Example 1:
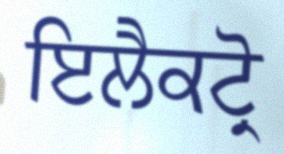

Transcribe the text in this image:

ਇਲੈਕਟ੍ਰੋ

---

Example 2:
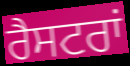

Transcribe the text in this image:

ਰੈਸਟਰਾਂ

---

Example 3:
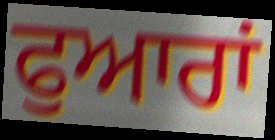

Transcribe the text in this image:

ਫੁਆਰਾਂ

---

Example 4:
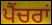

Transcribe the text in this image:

ਪੈਂਚਰਾਂ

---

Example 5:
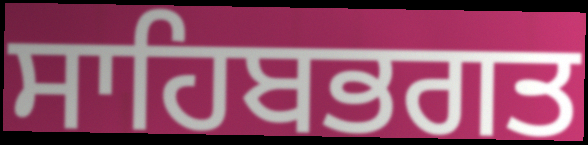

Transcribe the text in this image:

ਸਾਹਿਬਭਗਤ